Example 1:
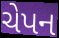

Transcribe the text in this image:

ચેપન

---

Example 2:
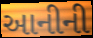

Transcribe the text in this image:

આનીની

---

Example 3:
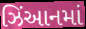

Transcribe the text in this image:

ઝિંઆનમાં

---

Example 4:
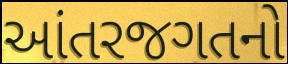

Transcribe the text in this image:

આંતરજગતનો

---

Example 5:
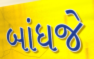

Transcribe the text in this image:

બાંધજે